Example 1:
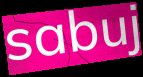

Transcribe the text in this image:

sabuj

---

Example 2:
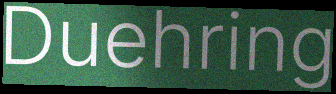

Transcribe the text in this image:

Duehring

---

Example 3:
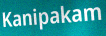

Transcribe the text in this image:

Kanipakam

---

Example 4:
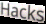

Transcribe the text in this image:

Hacks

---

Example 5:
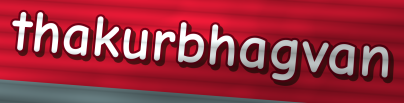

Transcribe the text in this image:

thakurbhagvan